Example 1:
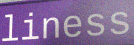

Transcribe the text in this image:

liness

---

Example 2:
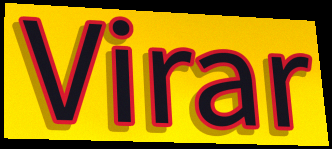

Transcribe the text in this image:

Virar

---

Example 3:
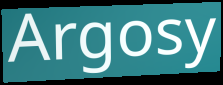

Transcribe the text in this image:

Argosy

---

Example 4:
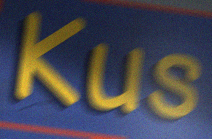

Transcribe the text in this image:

Kus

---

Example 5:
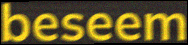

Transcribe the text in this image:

beseem